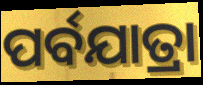
ପର୍ବଯାତ୍ରା